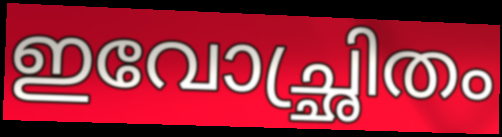
ഇവോച്ഛ്രിതം